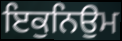
ਇਕੁਨਿਉਮ